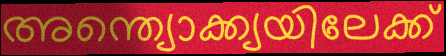
അന്ത്യൊക്ക്യയിലേക്ക്